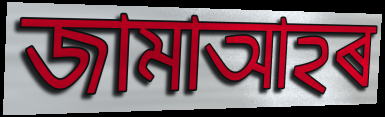
জামাআহৰ